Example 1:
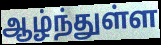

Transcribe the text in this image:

ஆழ்ந்துள்ள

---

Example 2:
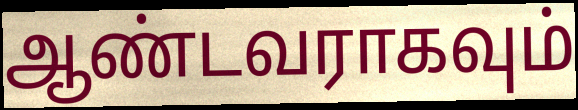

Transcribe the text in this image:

ஆண்டவராகவும்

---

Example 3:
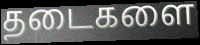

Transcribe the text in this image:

தடைகளை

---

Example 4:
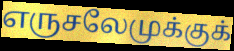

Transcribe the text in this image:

எருசலேமுக்குக்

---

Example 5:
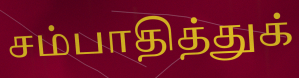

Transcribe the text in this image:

சம்பாதித்துக்